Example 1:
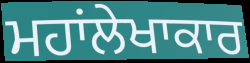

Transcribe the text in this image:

ਮਹਾਂਲੇਖਾਕਾਰ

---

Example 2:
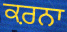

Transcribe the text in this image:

ਕ਼ਰਨਾ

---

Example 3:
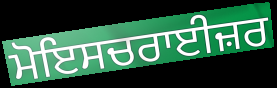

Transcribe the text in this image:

ਮੋਇਸਚਰਾਈਜ਼ਰ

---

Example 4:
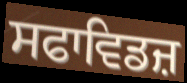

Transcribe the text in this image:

ਸਫਾਵਿਡਜ਼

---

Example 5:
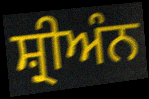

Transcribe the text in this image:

ਸ਼੍ਰੀਅੰਨ